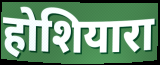
होशियारा